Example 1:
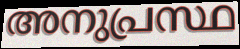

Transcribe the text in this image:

അനുപ്രസ്ഥ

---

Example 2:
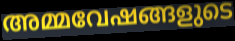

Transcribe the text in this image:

അമ്മവേഷങ്ങളുടെ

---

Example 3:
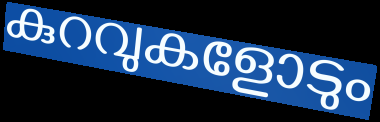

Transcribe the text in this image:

കുറവുകളോടും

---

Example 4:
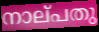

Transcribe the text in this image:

നാല്‌പതു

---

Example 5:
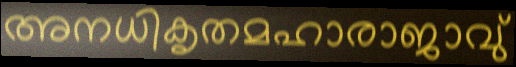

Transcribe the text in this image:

അനധികൃതമഹാരാജാവു്